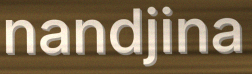
nandjina